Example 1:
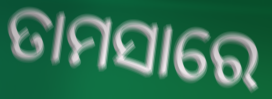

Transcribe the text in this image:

ତାମସାରେ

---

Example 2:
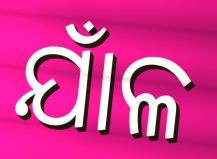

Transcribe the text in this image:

ଯାଁଳ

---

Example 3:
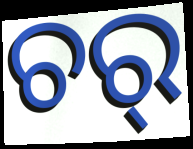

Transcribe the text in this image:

ଚର୍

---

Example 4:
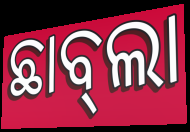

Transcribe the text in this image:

ଛାବ୍‍ଲା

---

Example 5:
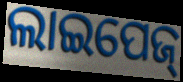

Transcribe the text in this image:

ଲାଇପେଜ୍